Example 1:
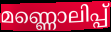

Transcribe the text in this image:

മണ്ണൊലിപ്പ്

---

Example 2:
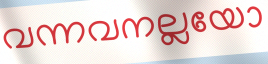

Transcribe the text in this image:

വന്നവനല്ലയോ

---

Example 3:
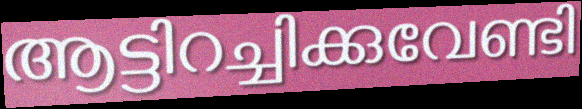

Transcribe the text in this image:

ആട്ടിറച്ചിക്കുവേണ്ടി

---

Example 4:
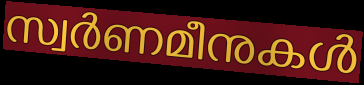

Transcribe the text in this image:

സ്വർണമീനുകൾ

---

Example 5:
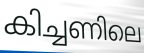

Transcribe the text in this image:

കിച്ചണിലെ